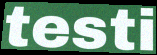
testi